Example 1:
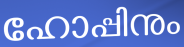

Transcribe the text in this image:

ഹോപ്പിനും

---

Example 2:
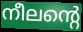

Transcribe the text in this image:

നീലന്റെ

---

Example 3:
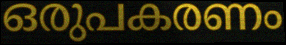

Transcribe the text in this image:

ഒരുപകരണം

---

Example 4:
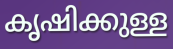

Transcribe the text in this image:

കൃഷിക്കുള്ള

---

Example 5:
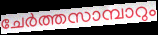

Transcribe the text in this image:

ചേർത്തസാമ്പാറും